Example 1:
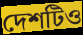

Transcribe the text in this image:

দেশটিও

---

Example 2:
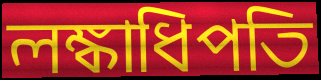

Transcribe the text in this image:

লঙ্কাধিপতি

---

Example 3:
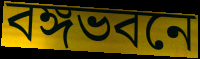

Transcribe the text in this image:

বঙ্গভবনে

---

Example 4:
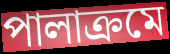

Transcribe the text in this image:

পালাক্রমে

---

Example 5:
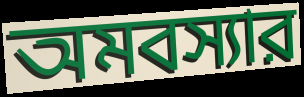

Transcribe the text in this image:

অমবস্যার